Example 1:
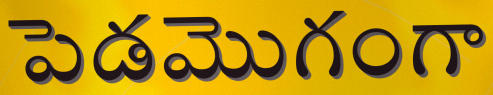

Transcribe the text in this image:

పెడమొగంగా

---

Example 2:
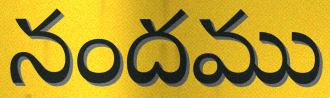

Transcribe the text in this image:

నందము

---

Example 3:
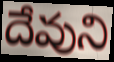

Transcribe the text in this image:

దేవుని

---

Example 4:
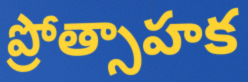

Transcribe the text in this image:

ప్రోత్సాహక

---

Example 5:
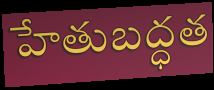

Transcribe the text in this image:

హేతుబద్ధత